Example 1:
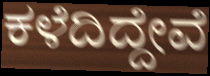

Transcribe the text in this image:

ಕಳೆದಿದ್ದೇವೆ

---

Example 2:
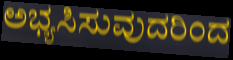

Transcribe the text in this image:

ಅಭ್ಯಸಿಸುವುದರಿಂದ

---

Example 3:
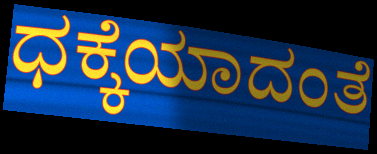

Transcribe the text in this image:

ಧಕ್ಕೆಯಾದಂತೆ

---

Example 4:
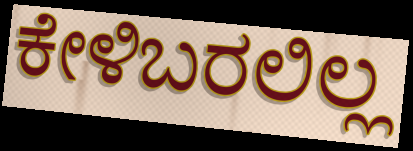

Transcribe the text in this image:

ಕೇಳಿಬರಲಿಲ್ಲ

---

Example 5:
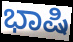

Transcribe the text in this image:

ಭಾಷಿ